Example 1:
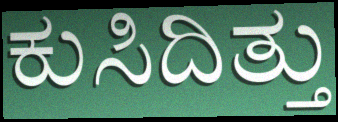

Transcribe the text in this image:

ಕುಸಿದಿತ್ತು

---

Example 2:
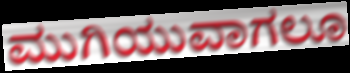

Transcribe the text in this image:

ಮುಗಿಯುವಾಗಲೂ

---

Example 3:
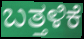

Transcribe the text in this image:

ಬತ್ತಳಿಕೆ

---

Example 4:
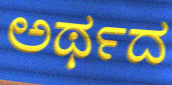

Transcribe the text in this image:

ಅರ್ಥದ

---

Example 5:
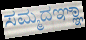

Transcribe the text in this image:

ಸಮ್ಮದಞ್ಞಾ